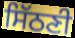
ਸਿੱਠਣੀ